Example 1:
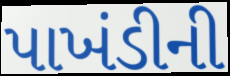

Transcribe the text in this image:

પાખંડીની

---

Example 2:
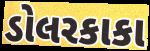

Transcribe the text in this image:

ડોલરકાકા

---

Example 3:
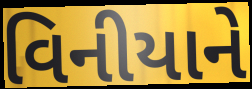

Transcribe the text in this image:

વિનીયાને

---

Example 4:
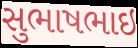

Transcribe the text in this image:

સુભાષભાઇ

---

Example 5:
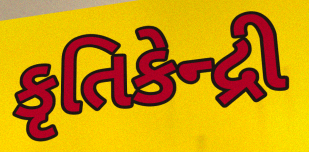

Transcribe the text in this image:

કૃતિકેન્દ્રી